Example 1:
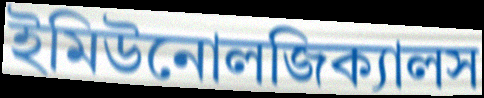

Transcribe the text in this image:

ইমিউনোলজিক্যালস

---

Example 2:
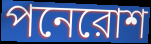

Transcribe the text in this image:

পনেরোশ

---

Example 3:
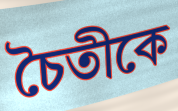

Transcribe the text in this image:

চৈতীকে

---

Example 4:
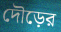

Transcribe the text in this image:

দৌড়ের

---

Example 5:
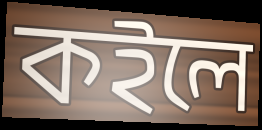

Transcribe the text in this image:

কইলে